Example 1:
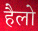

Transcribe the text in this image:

हैलो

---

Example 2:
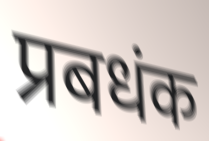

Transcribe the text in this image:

प्रबधंक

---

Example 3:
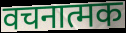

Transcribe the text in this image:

वचनात्मक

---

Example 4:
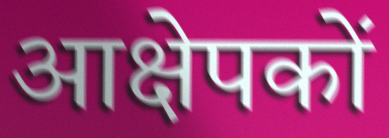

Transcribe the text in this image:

आक्षेपकों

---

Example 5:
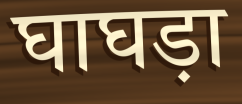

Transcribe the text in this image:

घाघड़ा